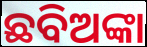
ଛବିଅଙ୍କା